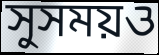
সুসময়ও